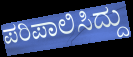
ಪರಿಪಾಲಿಸಿದ್ದು